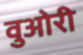
वुओरी